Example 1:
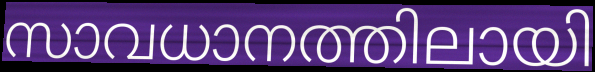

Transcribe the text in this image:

സാവധാനത്തിലായി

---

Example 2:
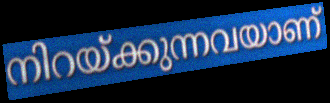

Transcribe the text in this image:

നിറയ്ക്കുന്നവയാണ്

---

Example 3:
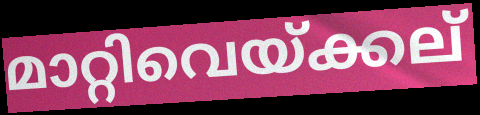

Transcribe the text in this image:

മാറ്റിവെയ്ക്കല്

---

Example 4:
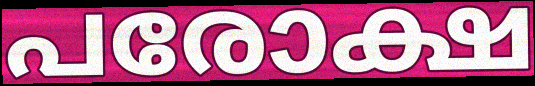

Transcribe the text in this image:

പരോക്ഷ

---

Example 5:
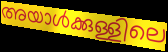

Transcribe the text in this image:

അയാൾക്കുള്ളിലെ